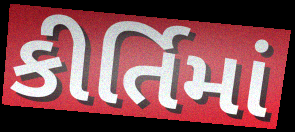
કીર્તિમાં